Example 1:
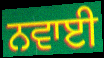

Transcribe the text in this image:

ਨਵਾਈ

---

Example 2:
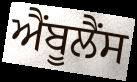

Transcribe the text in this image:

ਐੰਬੂਲੈਂਸ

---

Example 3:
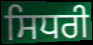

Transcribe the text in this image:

ਸਿਧਰੀ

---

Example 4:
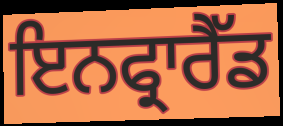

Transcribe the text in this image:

ਇਨਫ੍ਰਾਰੈੱਡ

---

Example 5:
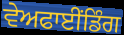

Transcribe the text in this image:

ਵੇਅਫਾਈਂਡਿੰਗ